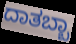
ದಾತಬ್ಬಾ